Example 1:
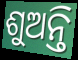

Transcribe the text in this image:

ଶୁଅନ୍ତି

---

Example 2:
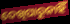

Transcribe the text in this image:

ଦେଖିପାରୁନାହିଁ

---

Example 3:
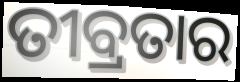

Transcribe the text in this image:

ତୀବ୍ରତାର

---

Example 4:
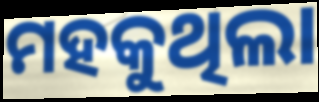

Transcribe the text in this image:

ମହକୁଥିଲା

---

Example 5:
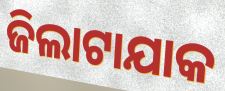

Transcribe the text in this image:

ଜିଲାଟାଯାକ